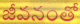
జీవనంతో